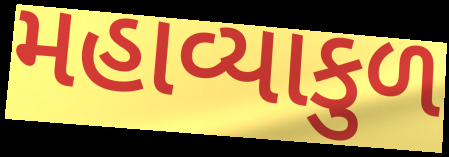
મહાવ્યાકુળ